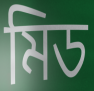
মিড